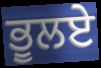
ਭੂਲਏ